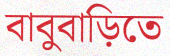
বাবুবাড়িতে